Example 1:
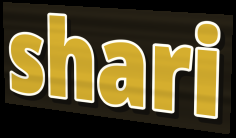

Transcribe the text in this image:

shari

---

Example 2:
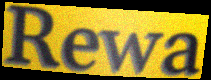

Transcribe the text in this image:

Rewa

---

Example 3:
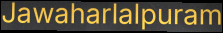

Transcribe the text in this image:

Jawaharlalpuram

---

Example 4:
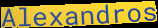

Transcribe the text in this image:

Alexandros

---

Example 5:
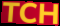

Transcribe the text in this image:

TCH